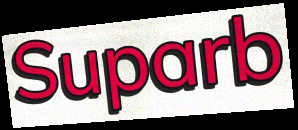
Suparb